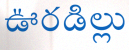
ఊరడిల్లు